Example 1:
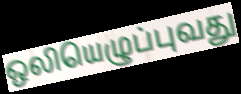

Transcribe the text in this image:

ஒலியெழுப்புவது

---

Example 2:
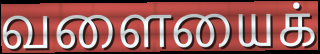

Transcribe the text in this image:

வளையைக்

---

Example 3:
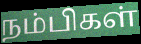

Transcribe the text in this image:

நம்பிகள்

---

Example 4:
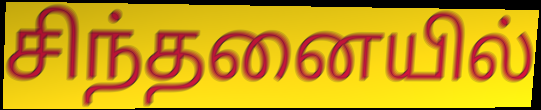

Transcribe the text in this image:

சிந்தனையில்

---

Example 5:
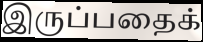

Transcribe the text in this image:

இருப்பதைக்